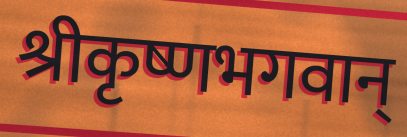
श्रीकृष्णभगवान्